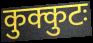
कुक्कुटः